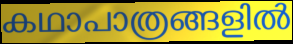
കഥാപാത്രങ്ങളിൽ